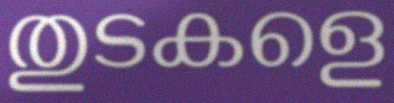
തുടകളെ